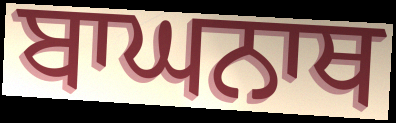
ਬਾਘਨਾਥ